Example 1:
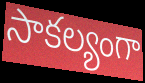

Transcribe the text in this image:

సాకల్యంగా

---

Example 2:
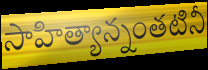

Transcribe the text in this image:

సాహిత్యాన్నంతటినీ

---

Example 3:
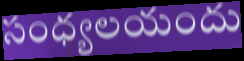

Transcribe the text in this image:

సంధ్యలయందు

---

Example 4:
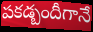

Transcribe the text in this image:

పకడ్బందీగానే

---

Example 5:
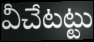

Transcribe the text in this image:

వీచేటట్టు